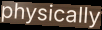
physically